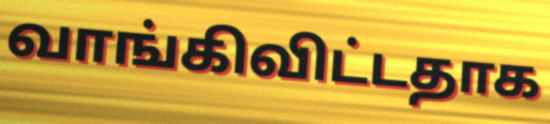
வாங்கிவிட்டதாக